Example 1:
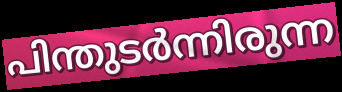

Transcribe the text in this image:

പിന്തുടർന്നിരുന്ന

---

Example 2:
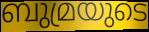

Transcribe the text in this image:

ബുമ്രയുടെ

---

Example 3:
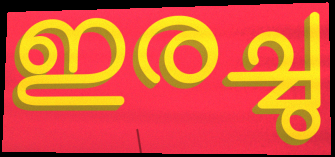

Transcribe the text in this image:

ഇരച്ചു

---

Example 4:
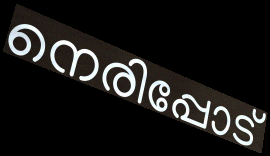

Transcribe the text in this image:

നെരിപ്പോട്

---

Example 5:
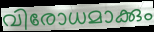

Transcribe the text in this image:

വിരോധമാക്കും